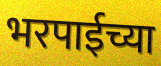
भरपाईच्या